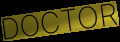
DOCTOR